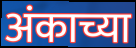
अंकाच्या